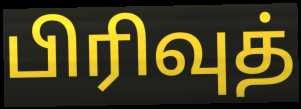
பிரிவுத்